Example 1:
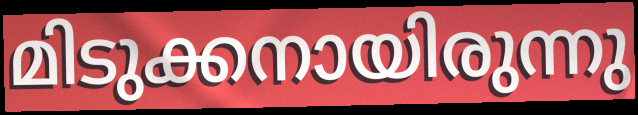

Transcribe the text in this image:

മിടുക്കനായിരുന്നു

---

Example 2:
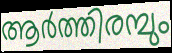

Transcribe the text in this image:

ആർത്തിരമ്പും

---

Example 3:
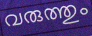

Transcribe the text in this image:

വരുത്തും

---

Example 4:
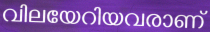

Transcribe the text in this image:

വിലയേറിയവരാണ്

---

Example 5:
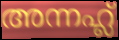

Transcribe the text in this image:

അന്നഹ്ല്